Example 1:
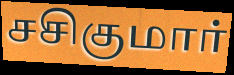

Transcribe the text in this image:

சசிகுமார்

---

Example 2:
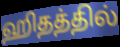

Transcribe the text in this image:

ஹிதத்தில்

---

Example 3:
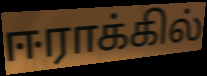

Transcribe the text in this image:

ஈராக்கில்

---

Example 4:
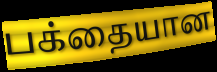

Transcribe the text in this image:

பக்தையான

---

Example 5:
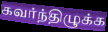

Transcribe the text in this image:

கவர்ந்திழுக்க